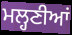
ਮਲ੍ਹਣੀਆਂ